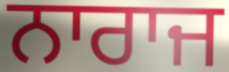
ਨਾਰਾਜ